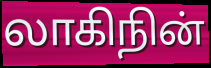
லாகிநின்